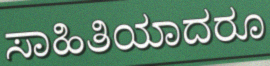
ಸಾಹಿತಿಯಾದರೂ